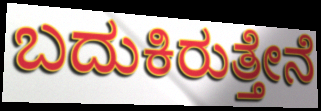
ಬದುಕಿರುತ್ತೇನೆ